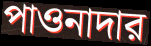
পাওনাদার